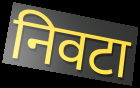
निवटा